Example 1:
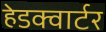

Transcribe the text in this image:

हेडक्वार्टर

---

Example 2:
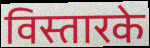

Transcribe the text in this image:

विस्तारके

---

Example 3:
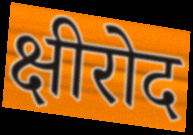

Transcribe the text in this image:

क्षीरोद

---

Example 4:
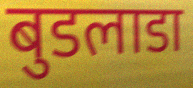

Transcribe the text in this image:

बुडलाडा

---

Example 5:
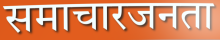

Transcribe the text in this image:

समाचारजनता